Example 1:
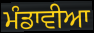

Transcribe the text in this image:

ਮੰਡਾਵੀਆ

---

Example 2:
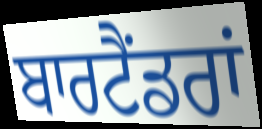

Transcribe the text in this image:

ਬਾਰਟੈਂਡਰਾਂ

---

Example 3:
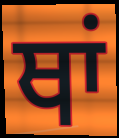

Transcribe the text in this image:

ਥਾਂ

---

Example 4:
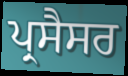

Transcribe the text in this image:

ਪ੍ਰਸੈਸਰ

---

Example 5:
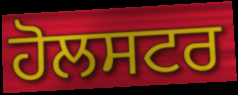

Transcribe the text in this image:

ਹੋਲਸਟਰ